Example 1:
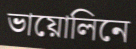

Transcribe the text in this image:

ভায়োলিনে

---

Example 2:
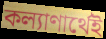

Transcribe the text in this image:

কল্যাণার্থেই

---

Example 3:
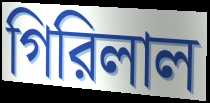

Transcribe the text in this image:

গিরিলাল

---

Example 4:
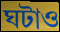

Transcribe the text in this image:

ঘটাও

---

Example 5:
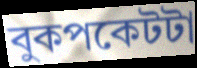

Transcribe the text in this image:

বুকপকেটটা